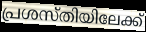
പ്രശസ്തിയിലേക്ക്